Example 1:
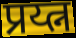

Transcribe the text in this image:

प्रय्त्न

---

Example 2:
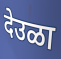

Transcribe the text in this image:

देउळा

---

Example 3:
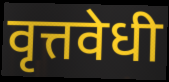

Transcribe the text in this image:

वृत्तवेधी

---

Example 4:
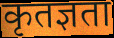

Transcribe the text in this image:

कृतज्ञता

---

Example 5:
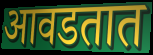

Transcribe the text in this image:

आवडतात